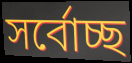
সৰ্বোচ্ছ